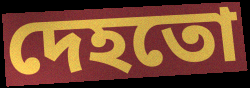
দেহতো